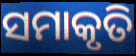
ସମାକୃତି